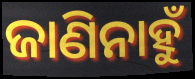
ଜାଣିନାହୁଁ